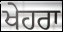
ਖੇਹਰਾ